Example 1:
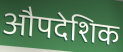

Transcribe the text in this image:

औपदेशिक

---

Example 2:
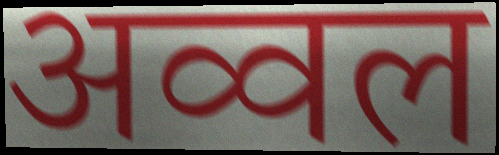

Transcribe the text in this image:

अव्वल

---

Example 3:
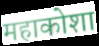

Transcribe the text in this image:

महाकोशा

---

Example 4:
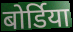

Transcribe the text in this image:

बोर्डिया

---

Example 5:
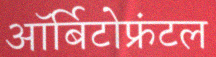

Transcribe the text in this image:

ऑर्बिटोफ्रंटल